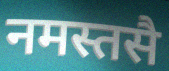
नमस्तसै